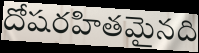
దోషరహితమైనది